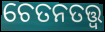
ଚେତନତତ୍ତ୍ୱ